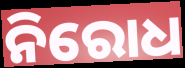
ନିରୋଧ